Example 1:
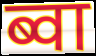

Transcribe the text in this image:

ब्वा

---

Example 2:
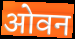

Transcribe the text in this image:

ओवन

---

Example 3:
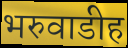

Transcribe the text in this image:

भरुवाडीह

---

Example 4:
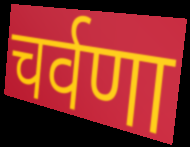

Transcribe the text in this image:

चर्वणा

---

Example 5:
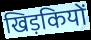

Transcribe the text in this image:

खिड़कियों